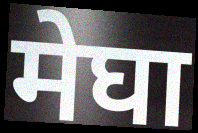
मेघा